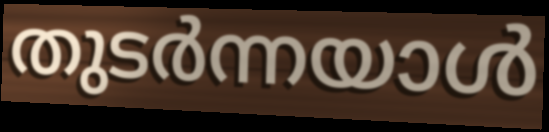
തുടർന്നയാൾ